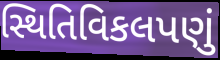
સ્થિતિવિકલપણું